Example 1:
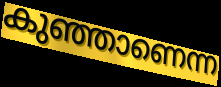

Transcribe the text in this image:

കുഞ്ഞാണെന്ന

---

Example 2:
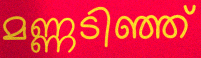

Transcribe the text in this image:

മണ്ണടിഞ്ഞ്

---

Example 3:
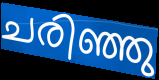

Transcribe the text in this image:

ചരിഞ്ഞു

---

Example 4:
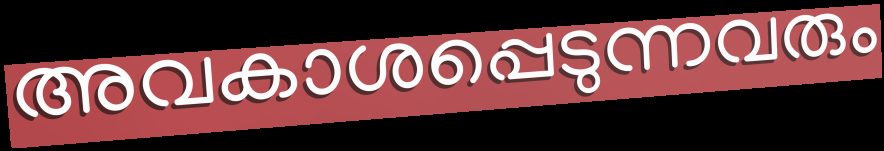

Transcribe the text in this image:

അവകാശപ്പെടുന്നവരും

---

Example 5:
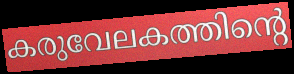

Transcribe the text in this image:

കരുവേലകത്തിന്റെ